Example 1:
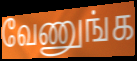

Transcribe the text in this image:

வேணுங்க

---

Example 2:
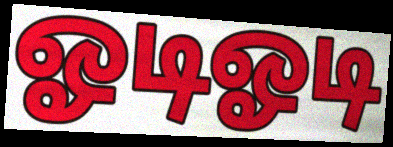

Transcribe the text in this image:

ஓடிஓடி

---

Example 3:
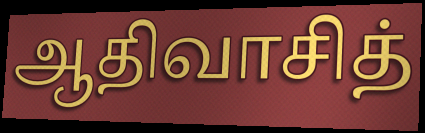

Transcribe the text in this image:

ஆதிவாசித்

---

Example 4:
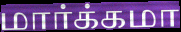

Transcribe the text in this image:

மார்க்கமா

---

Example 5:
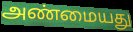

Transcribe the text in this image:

அண்மையது